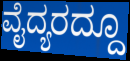
ವೈದ್ಯರದ್ದೂ